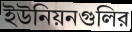
ইউনিয়নগুলির